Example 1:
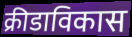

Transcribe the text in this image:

क्रीडाविकास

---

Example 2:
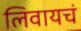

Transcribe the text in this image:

लिवायचं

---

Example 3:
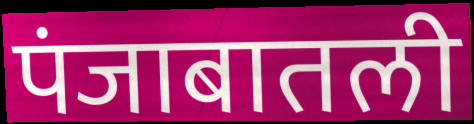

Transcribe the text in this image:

पंजाबातली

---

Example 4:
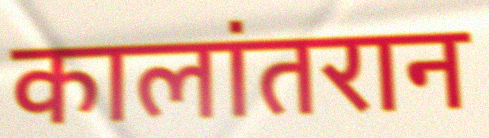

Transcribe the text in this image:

कालांतरान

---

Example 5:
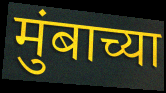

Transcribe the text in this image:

मुंबाच्या